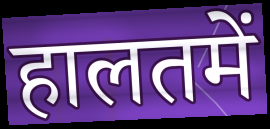
हालतमें